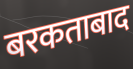
बरकताबाद